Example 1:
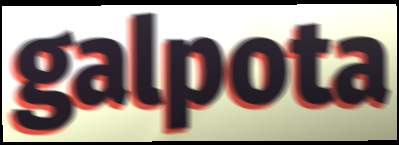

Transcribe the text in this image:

galpota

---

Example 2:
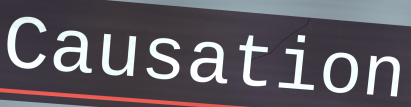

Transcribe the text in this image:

Causation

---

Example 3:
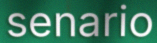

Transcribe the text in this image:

senario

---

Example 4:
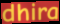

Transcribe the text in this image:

dhira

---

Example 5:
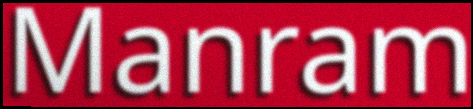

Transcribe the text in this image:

Manram